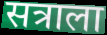
सत्राला